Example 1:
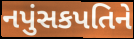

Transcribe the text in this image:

નપુંસકપતિને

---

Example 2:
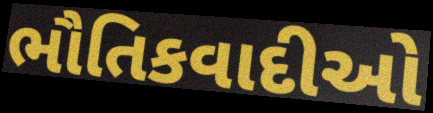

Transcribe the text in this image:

ભૌતિકવાદીઓ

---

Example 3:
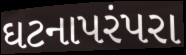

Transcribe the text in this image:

ઘટનાપરંપરા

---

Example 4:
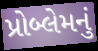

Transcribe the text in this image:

પ્રોબ્લેમનું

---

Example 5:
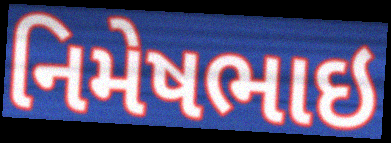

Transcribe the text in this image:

નિમેષભાઇ